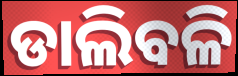
ଡାଲିବଳି